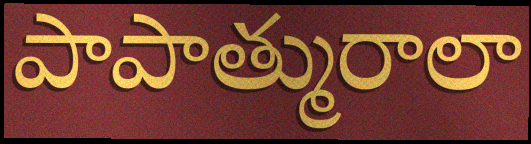
పాపాత్మురాలా